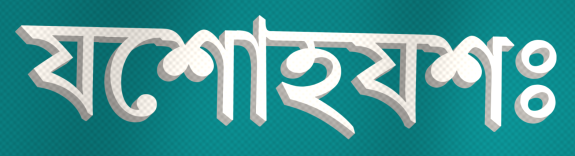
যশোহযশঃ